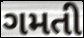
ગમતી